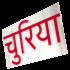
चुरिया